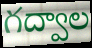
గద్వాల